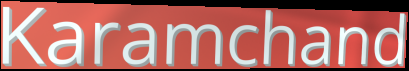
Karamchand